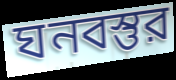
ঘনবস্তুর